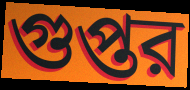
গুপ্তর